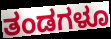
ತಂಡಗಳೂ